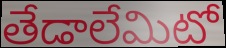
తేడాలేమిటో